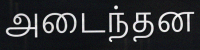
அடைந்தன